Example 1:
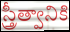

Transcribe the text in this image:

స్త్రీత్వానికి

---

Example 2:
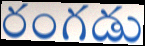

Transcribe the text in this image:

రంగడు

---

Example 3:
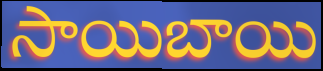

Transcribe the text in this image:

సాయిబాయి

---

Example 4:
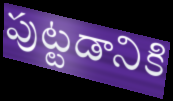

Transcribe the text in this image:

పుట్టడానికి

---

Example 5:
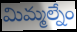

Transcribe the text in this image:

మిమ్మల్నేం